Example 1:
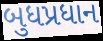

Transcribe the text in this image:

બુધપ્રધાન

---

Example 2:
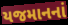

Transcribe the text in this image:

યજમાનનાં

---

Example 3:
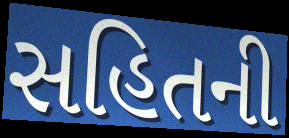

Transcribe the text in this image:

સહિતની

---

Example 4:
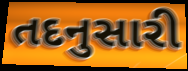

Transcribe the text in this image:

તદનુસારી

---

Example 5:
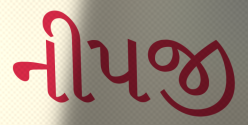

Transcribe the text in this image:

નીપજી